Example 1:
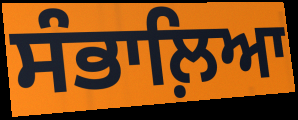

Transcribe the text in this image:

ਸੰਭਾਲ਼ਿਆ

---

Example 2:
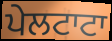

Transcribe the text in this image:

ਪੇਲਟਾਟਾ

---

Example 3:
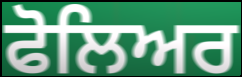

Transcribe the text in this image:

ਫੋਲਿਅਰ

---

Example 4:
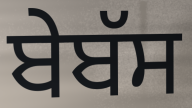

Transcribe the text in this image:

ਬੇਬੱਸ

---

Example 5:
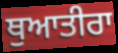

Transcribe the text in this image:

ਥੁਆਤੀਰਾ